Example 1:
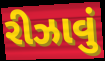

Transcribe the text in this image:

રીઝાવું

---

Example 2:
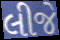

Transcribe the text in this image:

લીજે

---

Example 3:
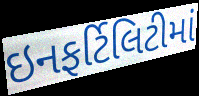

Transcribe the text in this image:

ઇનફર્ટિલિટીમાં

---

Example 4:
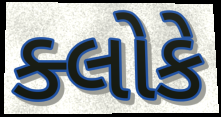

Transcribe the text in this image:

ક્લોકે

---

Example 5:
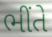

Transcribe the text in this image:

ભીંતે